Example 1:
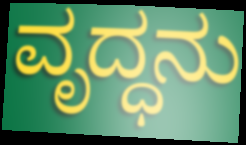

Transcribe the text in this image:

ವೃದ್ಧನು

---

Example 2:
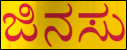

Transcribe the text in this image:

ಜಿನಸು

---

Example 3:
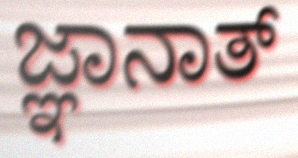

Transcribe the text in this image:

ಜ್ಞಾನಾತ್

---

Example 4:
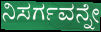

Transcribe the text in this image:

ನಿಸರ್ಗವನ್ನೇ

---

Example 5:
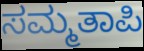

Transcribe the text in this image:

ಸಮ್ಮತಾಪಿ